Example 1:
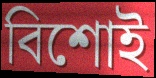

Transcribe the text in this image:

বিশোই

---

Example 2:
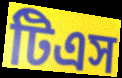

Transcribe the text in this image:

টিএস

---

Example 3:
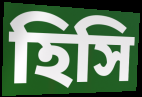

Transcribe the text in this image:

হিসি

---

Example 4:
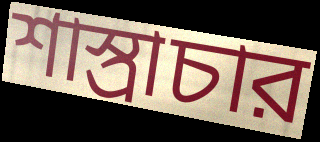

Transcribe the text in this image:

শাস্ত্রাচার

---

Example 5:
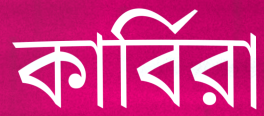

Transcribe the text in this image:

কার্বিরা